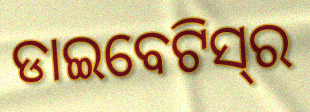
ଡାଇବେଟିସ୍‌ର